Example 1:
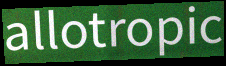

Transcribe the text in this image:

allotropic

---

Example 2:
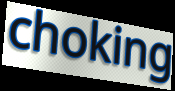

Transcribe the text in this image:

choking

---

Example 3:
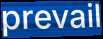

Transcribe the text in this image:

prevail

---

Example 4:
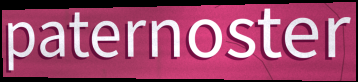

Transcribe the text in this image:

paternoster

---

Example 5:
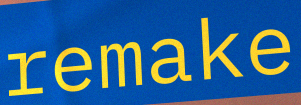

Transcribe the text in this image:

remake